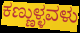
ಕಣ್ಣುಳ್ಳವಳು